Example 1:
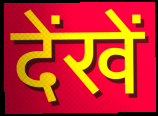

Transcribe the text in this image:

देंखें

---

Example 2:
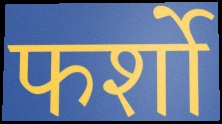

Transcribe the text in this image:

फर्शो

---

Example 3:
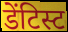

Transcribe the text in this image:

डेंटिस्ट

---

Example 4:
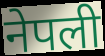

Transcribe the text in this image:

नेपली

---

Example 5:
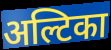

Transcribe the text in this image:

अल्टिका